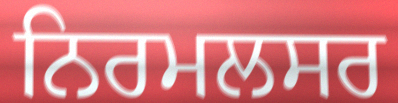
ਨਿਰਮਲਸਰ